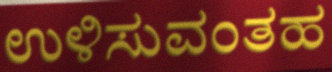
ಉಳಿಸುವಂತಹ